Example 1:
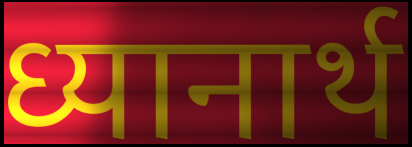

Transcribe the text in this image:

ध्यानार्थ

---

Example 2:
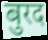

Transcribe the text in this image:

बुरद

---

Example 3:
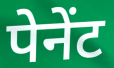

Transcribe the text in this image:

पेनेंट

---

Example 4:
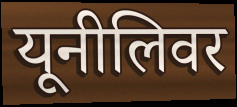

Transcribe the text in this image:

यूनीलिवर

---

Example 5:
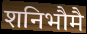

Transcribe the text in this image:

शनिभौमै